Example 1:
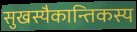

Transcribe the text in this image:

सुखस्यैकान्तिकस्य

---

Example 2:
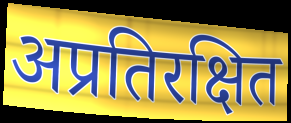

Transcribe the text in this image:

अप्रतिरक्षित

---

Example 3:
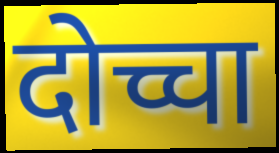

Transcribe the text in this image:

दोच्चा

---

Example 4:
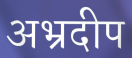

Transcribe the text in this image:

अभ्रदीप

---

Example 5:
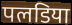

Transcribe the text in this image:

पलडिया